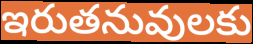
ఇరుతనువులకు